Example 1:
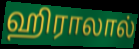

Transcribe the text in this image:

ஹிராலால்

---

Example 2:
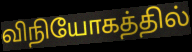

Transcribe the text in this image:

விநியோகத்தில்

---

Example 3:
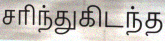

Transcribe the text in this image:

சரிந்துகிடந்த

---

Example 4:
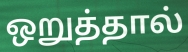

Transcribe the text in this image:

ஒறுத்தால்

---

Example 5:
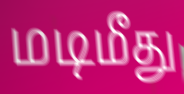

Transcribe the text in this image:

மடிமீது